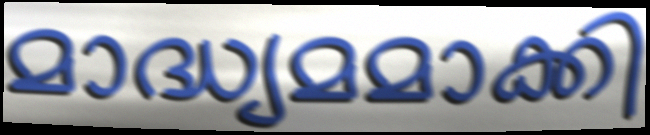
മാദ്ധ്യമമാക്കി